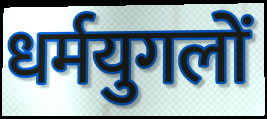
धर्मयुगलों